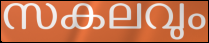
സകലവും